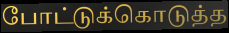
போட்டுக்கொடுத்த